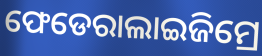
ଫେଡେରାଲାଇଜିମ୍ରେ